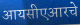
आयसीएआरचे